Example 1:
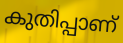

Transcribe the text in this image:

കുതിപ്പാണ്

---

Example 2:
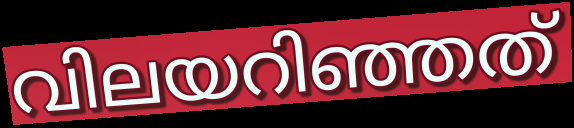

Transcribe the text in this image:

വിലയറിഞ്ഞത്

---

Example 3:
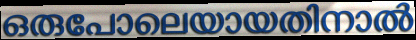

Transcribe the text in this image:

ഒരുപോലെയായതിനാൽ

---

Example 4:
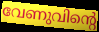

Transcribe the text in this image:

വേണുവിന്റെ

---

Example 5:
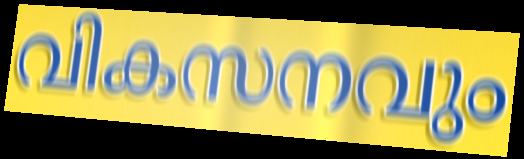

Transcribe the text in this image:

വികസനവും